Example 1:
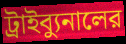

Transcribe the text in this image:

ট্রাইব্যুনালের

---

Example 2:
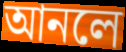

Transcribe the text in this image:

আনলে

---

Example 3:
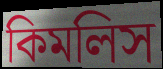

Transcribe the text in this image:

কিমলিস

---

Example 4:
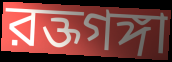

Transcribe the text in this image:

রক্তগঙ্গা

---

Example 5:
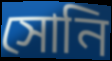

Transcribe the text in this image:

সোনি